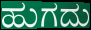
ಹುಗದು